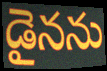
డైనను